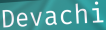
Devachi